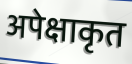
अपेक्षाकृत